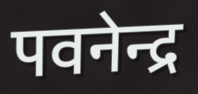
पवनेन्द्र